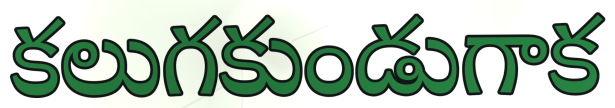
కలుగకుండుగాక